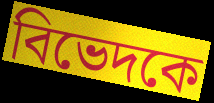
বিভেদকে